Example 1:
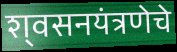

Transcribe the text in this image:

श्वसनयंत्रणेचे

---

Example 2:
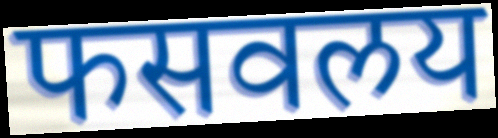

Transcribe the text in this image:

फसवलय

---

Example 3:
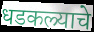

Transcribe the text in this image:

धडकल्याचे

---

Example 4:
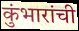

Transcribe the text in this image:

कुंभारांची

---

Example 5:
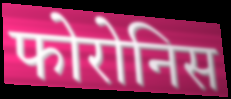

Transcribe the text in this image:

फोरोनिस